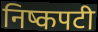
निष्कपटी